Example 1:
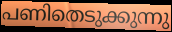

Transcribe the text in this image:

പണിതെടുക്കുന്നു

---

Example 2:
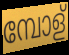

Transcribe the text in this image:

മ്പോള്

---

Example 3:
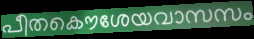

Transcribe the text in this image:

പീതകൌശേയവാസസം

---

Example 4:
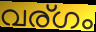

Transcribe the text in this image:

വര്ഗം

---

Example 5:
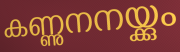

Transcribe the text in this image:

കണ്ണുനനയ്ക്കും